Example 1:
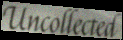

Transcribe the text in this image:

Uncollected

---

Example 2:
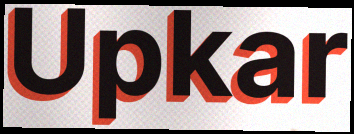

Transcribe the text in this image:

Upkar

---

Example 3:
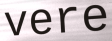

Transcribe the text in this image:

vere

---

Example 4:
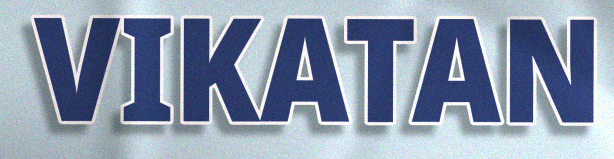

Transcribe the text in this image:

VIKATAN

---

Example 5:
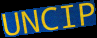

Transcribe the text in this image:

UNCIP